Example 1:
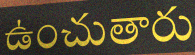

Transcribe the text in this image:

ఉంచుతారు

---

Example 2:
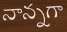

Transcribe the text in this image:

నాన్నగా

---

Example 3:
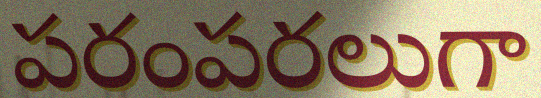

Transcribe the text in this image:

పరంపరలుగా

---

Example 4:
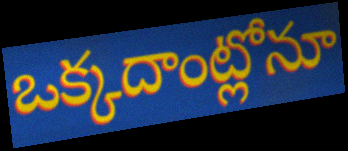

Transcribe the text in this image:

ఒక్కదాంట్లోనూ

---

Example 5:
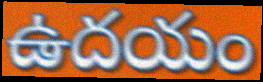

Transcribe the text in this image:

ఉదయం